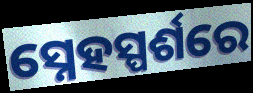
ସ୍ନେହସ୍ପର୍ଶରେ